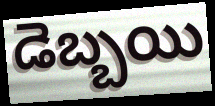
డెబ్బయి